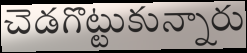
చెడగొట్టుకున్నారు